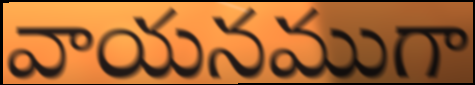
వాయనముగా